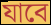
যাবে